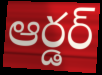
ఆర్డర్